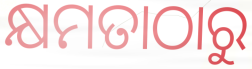
କ୍ଷମତାଠାରୁ